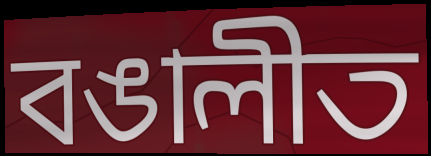
বঙালীত